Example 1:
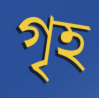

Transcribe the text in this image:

গৃহ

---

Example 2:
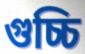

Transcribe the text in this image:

গুচ্চি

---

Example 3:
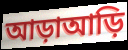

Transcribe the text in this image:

আড়াআড়ি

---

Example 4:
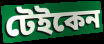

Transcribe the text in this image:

টেইকেন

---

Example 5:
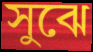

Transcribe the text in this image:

সুঝে